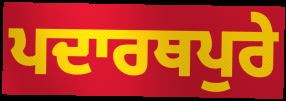
ਪਦਾਰਥਪੁਰੇ